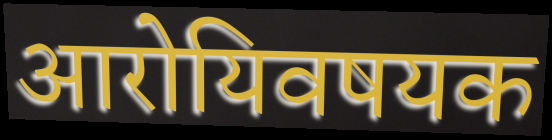
आरोयिवषयक